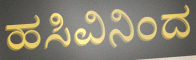
ಹಸಿವಿನಿಂದ